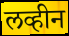
लव्हीन